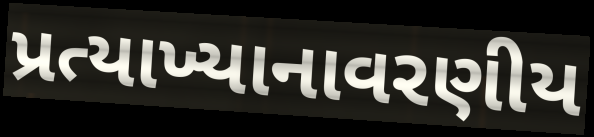
પ્રત્યાખ્યાનાવરણીય